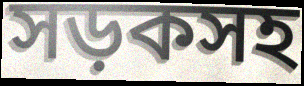
সড়কসহ